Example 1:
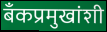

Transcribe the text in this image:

बँकप्रमुखांशी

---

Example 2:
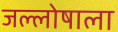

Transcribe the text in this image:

जल्लोषाला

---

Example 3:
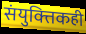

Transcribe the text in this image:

संयुक्तिकही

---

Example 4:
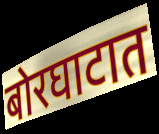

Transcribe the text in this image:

बोरघाटात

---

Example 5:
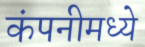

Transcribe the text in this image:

कंपनीमध्ये